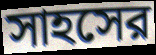
সাহসের